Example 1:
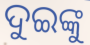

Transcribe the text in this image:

ଦୁଇଙ୍କୁ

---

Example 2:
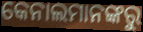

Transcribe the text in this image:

କେନାଲମାନଙ୍କରୁ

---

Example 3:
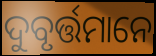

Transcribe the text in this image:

ଦୁବୃର୍ତ୍ତମାନେ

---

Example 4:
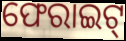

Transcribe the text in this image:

ଫେରାଇଟ୍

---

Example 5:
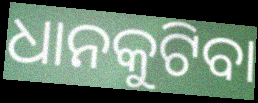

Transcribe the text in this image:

ଧାନକୁଟିବା